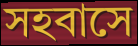
সহবাসে